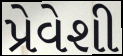
પ્રેવેશી